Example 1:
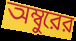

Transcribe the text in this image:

অম্বুরের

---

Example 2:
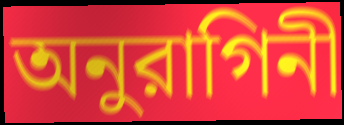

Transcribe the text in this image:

অনুরাগিনী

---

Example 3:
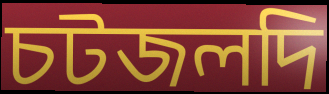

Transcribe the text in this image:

চটজলদি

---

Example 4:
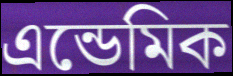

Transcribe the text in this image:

এন্ডেমিক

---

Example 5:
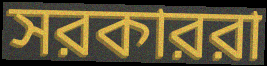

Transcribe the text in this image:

সরকাররা